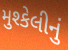
મુશ્કેલીનું